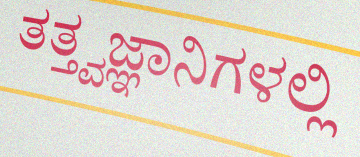
ತತ್ತ್ವಜ್ಞಾನಿಗಳಲ್ಲಿ